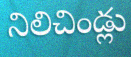
నిలిచిండ్లు